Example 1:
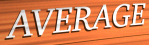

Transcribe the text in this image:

AVERAGE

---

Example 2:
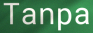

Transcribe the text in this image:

Tanpa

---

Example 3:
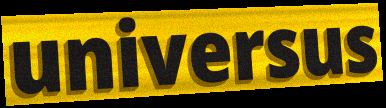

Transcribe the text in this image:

universus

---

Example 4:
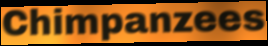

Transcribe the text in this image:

Chimpanzees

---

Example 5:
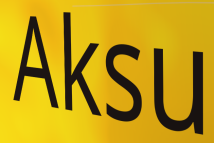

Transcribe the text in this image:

Aksu